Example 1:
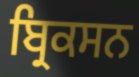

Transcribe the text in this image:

ਬ੍ਰਿਕਸਨ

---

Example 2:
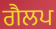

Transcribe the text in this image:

ਗੈਲਪ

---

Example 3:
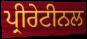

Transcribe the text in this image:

ਪ੍ਰੀਰੇਟੀਨਲ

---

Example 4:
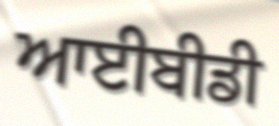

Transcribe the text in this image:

ਆਈਬੀਡੀ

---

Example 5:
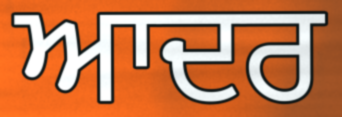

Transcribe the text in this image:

ਆਦਰ